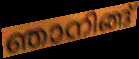
ഞാനിങ്ങ്